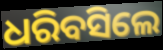
ଧରିବସିଲେ